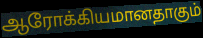
ஆரோக்கியமானதாகும்